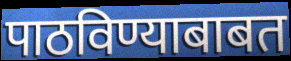
पाठविण्याबाबत